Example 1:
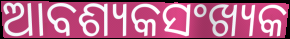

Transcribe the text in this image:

ଆବଶ୍ୟକସଂଖ୍ୟକ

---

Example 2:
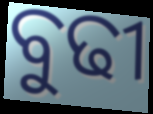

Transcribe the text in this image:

ବୁଢୀ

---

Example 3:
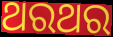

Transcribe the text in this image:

ଥରଥର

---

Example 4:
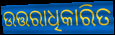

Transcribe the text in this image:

ଉତ୍ତରାଧିକାରିତ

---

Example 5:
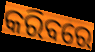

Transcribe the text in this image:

କରିବରେ